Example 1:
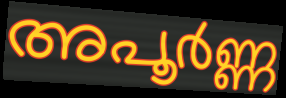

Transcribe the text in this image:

അപൂർണ്ണ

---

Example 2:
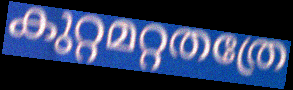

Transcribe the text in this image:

കുറ്റമറ്റതത്രേ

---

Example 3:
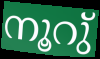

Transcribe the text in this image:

നൂറു്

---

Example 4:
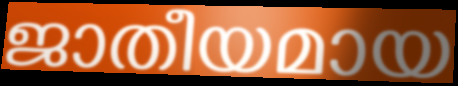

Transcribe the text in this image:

ജാതീയമായ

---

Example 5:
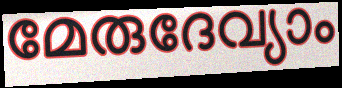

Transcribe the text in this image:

മേരുദേവ്യാം